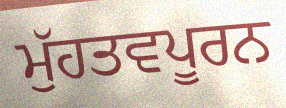
ਮੁੱਹਤਵਪੂਰਨ